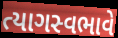
ત્યાગસ્વભાવે